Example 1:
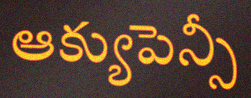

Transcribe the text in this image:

ఆక్యుపెన్సీ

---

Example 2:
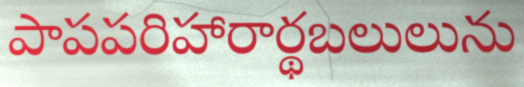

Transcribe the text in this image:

పాపపరిహారార్థబలులును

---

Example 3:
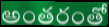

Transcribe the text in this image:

అంతరంతో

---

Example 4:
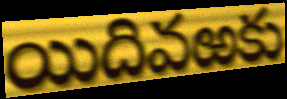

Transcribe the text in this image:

యిదివఱకు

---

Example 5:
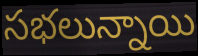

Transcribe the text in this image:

సభలున్నాయి